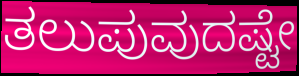
ತಲುಪುವುದಷ್ಟೇ